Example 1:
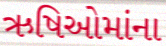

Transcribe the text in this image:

ઋષિઓમાંના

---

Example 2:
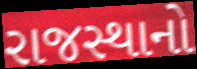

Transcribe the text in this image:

રાજસ્થાનો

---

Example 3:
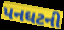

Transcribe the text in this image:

પનઘટની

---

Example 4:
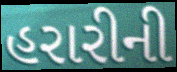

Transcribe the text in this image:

હરારીની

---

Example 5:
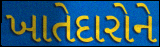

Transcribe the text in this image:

ખાતેદારોને